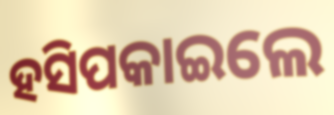
ହସିପକାଇଲେ